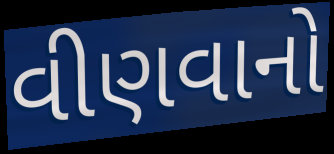
વીણવાનો